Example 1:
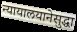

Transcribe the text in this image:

न्यायालयानेसुद्धा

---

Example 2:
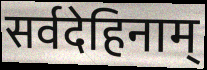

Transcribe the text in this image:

सर्वदेहिनाम्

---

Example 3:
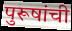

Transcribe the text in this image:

पुरूषांची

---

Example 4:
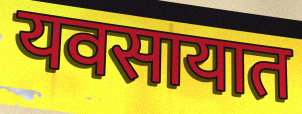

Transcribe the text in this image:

यवसायात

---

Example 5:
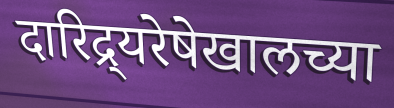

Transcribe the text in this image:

दारिद्र्यरेषेखालच्या